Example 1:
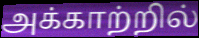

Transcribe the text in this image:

அக்காற்றில்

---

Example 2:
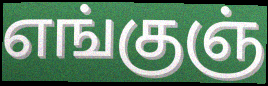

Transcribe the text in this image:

எங்குஞ்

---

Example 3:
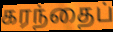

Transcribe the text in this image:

கரந்தைப்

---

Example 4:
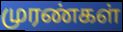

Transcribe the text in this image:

முரண்கள்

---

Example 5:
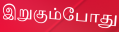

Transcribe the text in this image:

இறுகும்போது